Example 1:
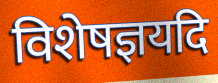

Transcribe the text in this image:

विशेषज्ञयदि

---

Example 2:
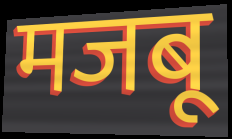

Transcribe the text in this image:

मजबू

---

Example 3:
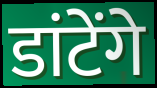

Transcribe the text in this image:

डांटेंगे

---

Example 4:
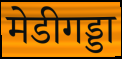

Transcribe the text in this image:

मेडीगड्डा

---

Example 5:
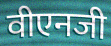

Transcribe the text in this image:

वीएनजी